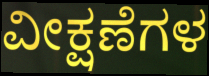
ವೀಕ್ಷಣೆಗಳ